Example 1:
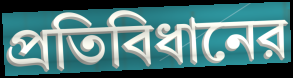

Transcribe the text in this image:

প্রতিবিধানের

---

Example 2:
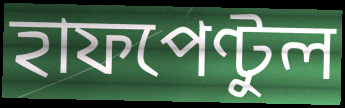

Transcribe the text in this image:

হাফপেণ্টুল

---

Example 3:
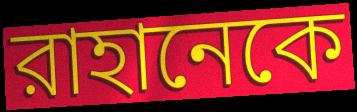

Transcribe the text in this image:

রাহানেকে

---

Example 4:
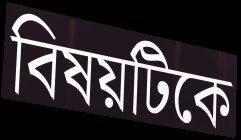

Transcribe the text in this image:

বিষয়টিকে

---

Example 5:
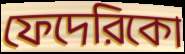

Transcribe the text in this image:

ফেদেরিকো